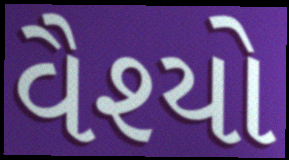
વૈશ્યો